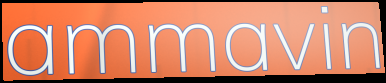
ammavin